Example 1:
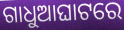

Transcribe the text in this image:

ଗାଧୁଆଘାଟରେ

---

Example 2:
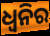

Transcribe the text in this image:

ଧ୍ୱନିର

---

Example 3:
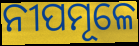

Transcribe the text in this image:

ନୀପମୂଳେ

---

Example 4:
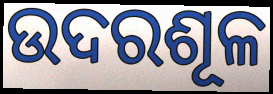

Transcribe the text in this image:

ଉଦରଶୂଳ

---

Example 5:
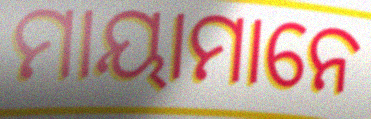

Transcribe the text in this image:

ମାୟାମାନେ